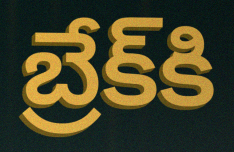
బ్రేక్‌కి